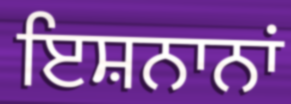
ਇਸ਼ਨਾਨਾਂ